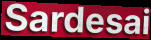
Sardesai